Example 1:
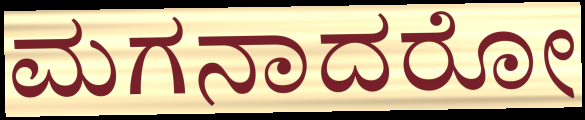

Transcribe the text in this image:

ಮಗನಾದರೋ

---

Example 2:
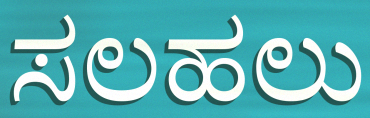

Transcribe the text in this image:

ಸಲಹಲು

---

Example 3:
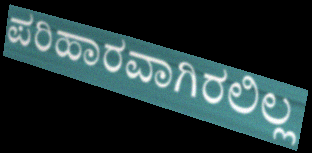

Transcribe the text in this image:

ಪರಿಹಾರವಾಗಿರಲಿಲ್ಲ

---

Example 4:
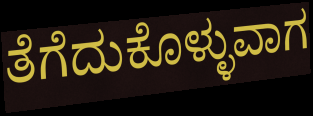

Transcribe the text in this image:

ತೆಗೆದುಕೊಳ್ಳುವಾಗ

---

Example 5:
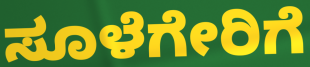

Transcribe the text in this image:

ಸೂಳೆಗೇರಿಗೆ